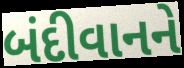
બંદીવાનને